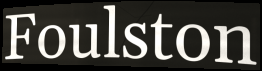
Foulston